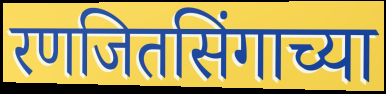
रणजितसिंगाच्या